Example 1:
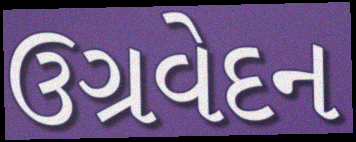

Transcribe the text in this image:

ઉગ્રવેદન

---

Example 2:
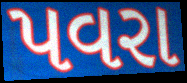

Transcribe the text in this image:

પવરા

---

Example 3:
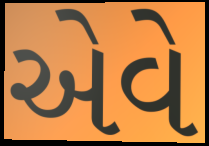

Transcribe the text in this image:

એવે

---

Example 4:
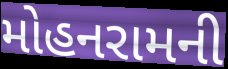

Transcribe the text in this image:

મોહનરામની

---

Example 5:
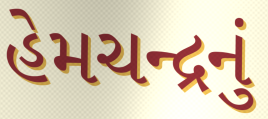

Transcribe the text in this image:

હેમચન્દ્રનું